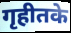
गृहीतके